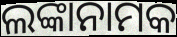
ଲଙ୍କାନାମକ